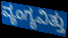
ವ್ಯಂಗ್ಯವಿತ್ತು